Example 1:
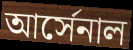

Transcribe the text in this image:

আর্সেনাল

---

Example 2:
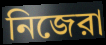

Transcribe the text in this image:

নিজেরা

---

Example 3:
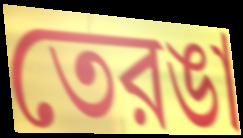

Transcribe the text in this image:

তেরঙা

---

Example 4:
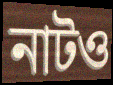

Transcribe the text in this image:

নাটও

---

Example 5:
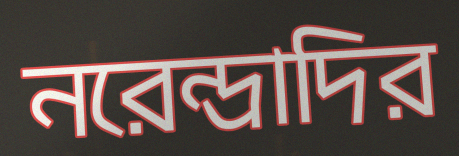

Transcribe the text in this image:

নরেন্দ্রাদির